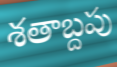
శతాబ్దపు